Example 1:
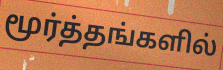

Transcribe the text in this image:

மூர்த்தங்களில்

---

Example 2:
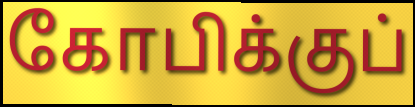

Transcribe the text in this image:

கோபிக்குப்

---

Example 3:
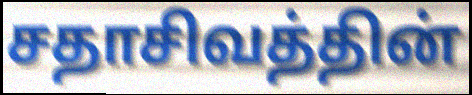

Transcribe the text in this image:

சதாசிவத்தின்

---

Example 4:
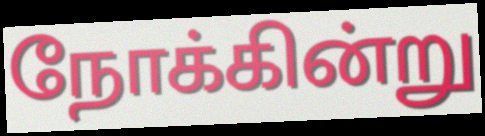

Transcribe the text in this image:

நோக்கின்று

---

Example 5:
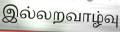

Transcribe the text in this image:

இல்லறவாழ்வு